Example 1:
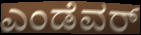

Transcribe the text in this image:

ಎಂಡೆವರ್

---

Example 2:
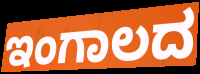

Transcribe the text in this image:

ಇಂಗಾಲದ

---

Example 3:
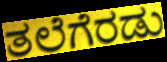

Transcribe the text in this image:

ತಲೆಗೆರಡು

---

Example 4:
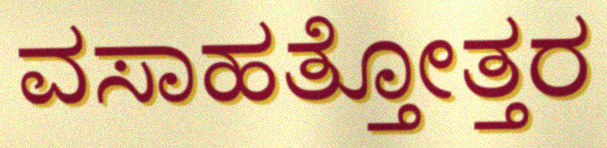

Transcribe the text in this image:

ವಸಾಹತ್ತೋತ್ತರ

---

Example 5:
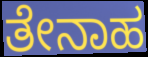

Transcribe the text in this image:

ತೇನಾಹ